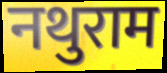
नथुराम